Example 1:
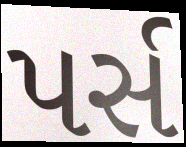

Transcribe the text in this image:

પર્સ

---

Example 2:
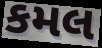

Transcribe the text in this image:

કમલ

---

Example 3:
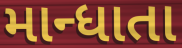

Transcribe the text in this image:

માન્ધાતા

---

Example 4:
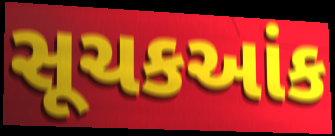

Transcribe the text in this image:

સૂચકઆંક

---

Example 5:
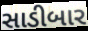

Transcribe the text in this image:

સાડીબાર